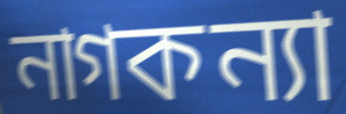
নাগকন্যা